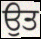
ਉਤ